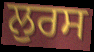
ਲੁਰਸ